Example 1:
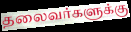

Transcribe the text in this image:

தலைவர்களுக்கு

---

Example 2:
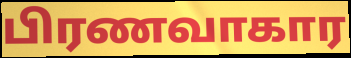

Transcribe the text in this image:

பிரணவாகார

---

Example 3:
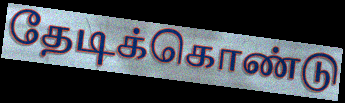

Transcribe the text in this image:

தேடிக்கொண்டு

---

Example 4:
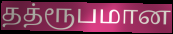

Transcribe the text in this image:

தத்ரூபமான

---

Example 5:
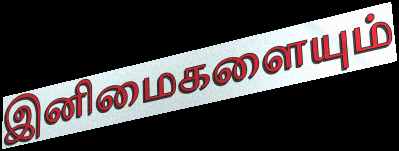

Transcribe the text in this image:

இனிமைகளையும்